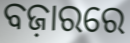
ବଜ଼ାରରେ